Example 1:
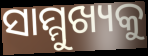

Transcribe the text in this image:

ସାମ୍ମୁଖ୍ୟକୁ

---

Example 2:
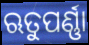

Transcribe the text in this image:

ଋତୁପର୍ଣ୍ଣା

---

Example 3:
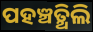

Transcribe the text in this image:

ପହଞ୍ଚତ୍ଥିଲି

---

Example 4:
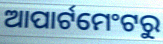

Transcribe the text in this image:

ଆପାର୍ଟମେଂଟରୁ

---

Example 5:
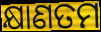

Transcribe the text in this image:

କ୍ଷାଣତମ